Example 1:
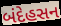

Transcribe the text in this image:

બંદેહસન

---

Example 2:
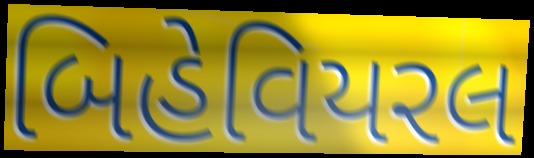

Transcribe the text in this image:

બિહેવિયરલ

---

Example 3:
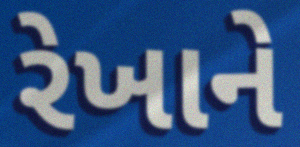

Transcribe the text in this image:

રેખાને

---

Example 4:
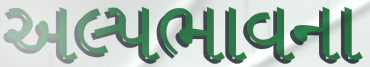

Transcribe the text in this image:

અલ્પભાવના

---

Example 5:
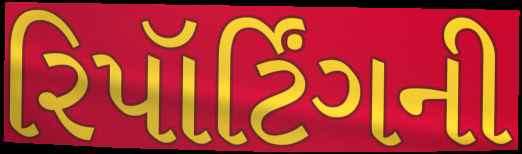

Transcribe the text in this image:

રિપૉર્ટિંગની